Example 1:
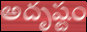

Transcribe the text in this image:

అదృష్టం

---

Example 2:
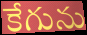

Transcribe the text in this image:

కేగును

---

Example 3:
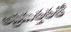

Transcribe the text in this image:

అప్రమత్తతతో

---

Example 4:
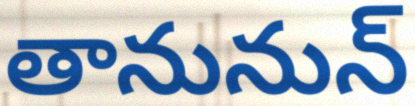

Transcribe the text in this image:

తానునున్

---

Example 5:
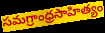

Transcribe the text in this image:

సమగ్రాంధ్రసాహిత్యం